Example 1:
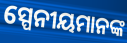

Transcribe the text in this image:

ସ୍ପେନୀୟମାନଙ୍କ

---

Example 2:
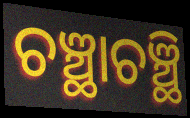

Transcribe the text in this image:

ଚଞ୍ଛାଚଞ୍ଛି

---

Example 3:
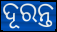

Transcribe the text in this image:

ଦୂରନ୍ତ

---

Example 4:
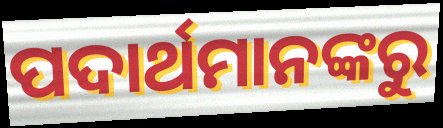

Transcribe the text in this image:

ପଦାର୍ଥମାନଙ୍କରୁ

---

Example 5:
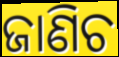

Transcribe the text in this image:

ଜାଣିଚ